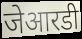
जेआरडी